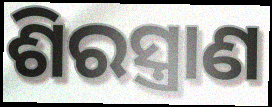
ଶିରସ୍ତ୍ରାଣ